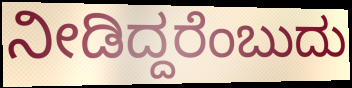
ನೀಡಿದ್ದರೆಂಬುದು